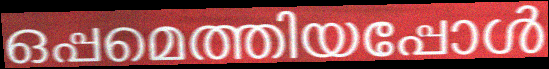
ഒപ്പമെത്തിയപ്പോൾ